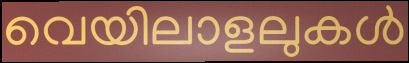
വെയിലാളലുകൾ